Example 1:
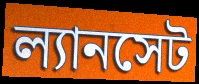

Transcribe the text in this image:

ল্যানসেট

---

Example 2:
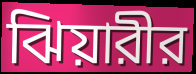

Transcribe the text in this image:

ঝিয়ারীর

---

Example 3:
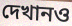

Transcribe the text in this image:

দেখানও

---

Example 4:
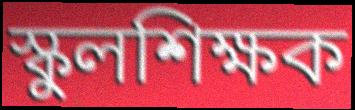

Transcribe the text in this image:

স্কুলশিক্ষক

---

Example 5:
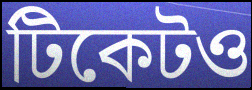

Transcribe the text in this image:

টিকেটও